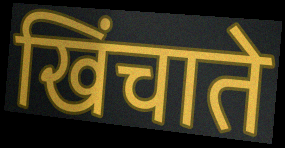
खिंचाते